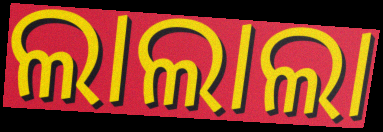
ଲାଲାଲା